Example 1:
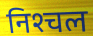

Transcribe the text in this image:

निश्चल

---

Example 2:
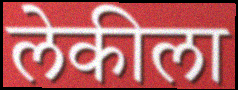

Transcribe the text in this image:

लेकीला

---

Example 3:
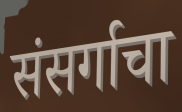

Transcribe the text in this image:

संसर्गाचा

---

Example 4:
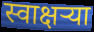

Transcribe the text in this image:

स्वाक्षऱ्या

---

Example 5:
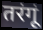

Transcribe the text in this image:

तरंगूं